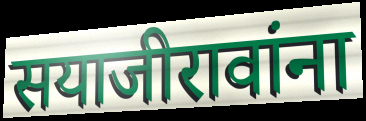
सयाजीरावांना